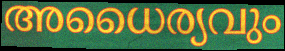
അധൈര്യവും